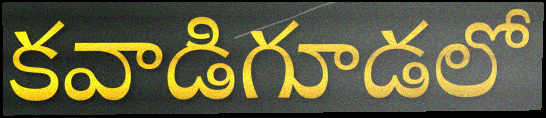
కవాడిగూడలో